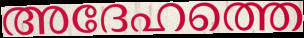
അദേഹത്തെ